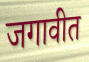
जगावीत